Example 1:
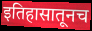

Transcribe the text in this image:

इतिहासातूनच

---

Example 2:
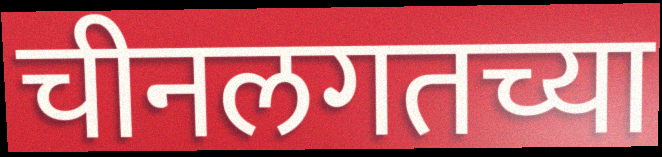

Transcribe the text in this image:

चीनलगतच्या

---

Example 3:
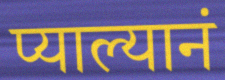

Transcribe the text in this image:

प्याल्यानं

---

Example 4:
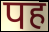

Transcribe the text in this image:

पह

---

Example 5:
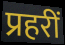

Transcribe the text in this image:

प्रहरीं